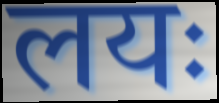
लयः